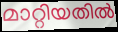
മാറ്റിയതിൽ